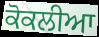
ਕੋਕਲੀਆ